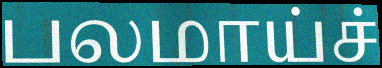
பலமாய்ச்